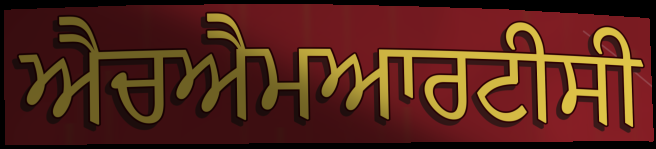
ਐਚਐਮਆਰਟੀਸੀ